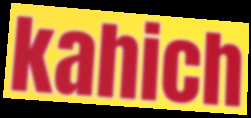
kahich